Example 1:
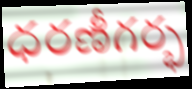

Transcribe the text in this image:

ధరణీగర్భ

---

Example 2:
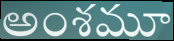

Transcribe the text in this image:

అంశమూ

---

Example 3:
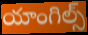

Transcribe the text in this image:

యాంగిల్స్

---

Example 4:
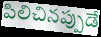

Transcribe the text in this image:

పిలిచినప్పుడే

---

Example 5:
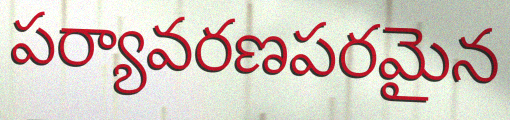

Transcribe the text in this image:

పర్యావరణపరమైన